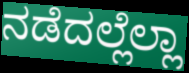
ನಡೆದಲ್ಲೆಲ್ಲಾ